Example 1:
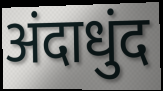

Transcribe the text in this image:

अंदाधुंद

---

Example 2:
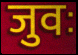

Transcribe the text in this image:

जुवः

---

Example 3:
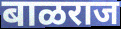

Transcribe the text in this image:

बाळराज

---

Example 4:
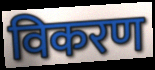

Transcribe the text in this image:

विकरण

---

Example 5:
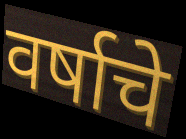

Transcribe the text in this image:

वर्षाचे